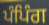
ਪੰਪਿੰਗ